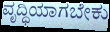
ವೃದ್ಧಿಯಾಗಬೇಕು